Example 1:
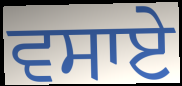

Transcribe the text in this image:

ਵਸਾਏ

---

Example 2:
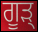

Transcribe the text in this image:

ਗੂੜ੍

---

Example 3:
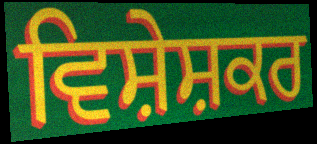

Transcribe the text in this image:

ਵਿਸ਼ੇਸ਼ਕਰ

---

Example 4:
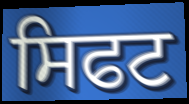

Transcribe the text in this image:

ਸਿਫਟ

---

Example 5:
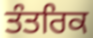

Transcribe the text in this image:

ਤੰਤਰਿਕ